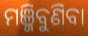
ମଞ୍ଜିବୁଣିବା